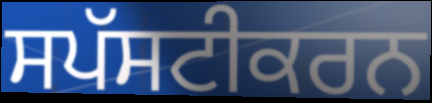
ਸਪੱਸਟੀਕਰਨ